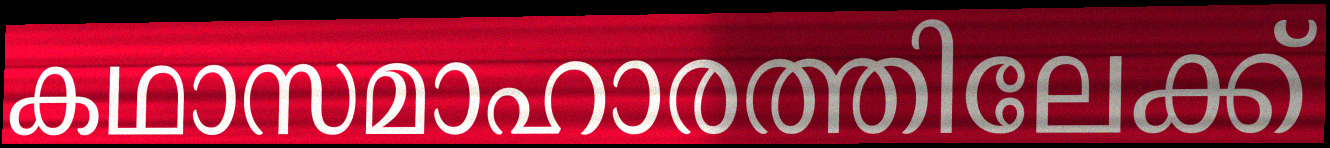
കഥാസമാഹാരത്തിലേക്ക്